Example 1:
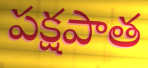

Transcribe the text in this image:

పక్షపాత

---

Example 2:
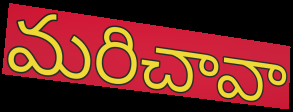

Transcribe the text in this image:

మరిచావా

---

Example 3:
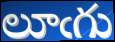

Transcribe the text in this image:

లూఁగు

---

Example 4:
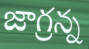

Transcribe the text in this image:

జాగ్రన్న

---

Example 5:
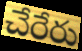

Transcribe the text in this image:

చేరేరు